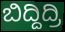
ಬಿದ್ದಿದ್ರಿ